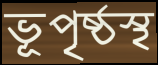
ভূপৃষ্ঠস্থ